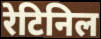
रेटिनिल